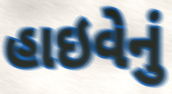
હાઇવેનું